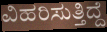
ವಿಹರಿಸುತ್ತಿದ್ದೆ